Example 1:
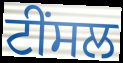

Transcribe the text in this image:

ਟੀਂਸਲ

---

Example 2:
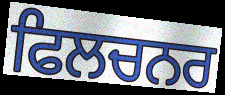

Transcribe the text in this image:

ਫਿਲਚਨਰ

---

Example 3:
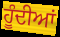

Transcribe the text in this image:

ਹੂੰਦੀਆਂ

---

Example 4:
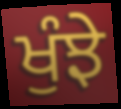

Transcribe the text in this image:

ਖੁੰਝੇ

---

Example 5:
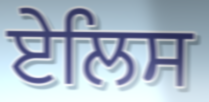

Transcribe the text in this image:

ਏਲਿਸ